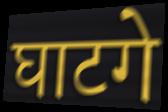
घाटगे